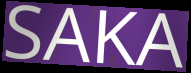
SAKA